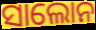
ସାଲୋନ